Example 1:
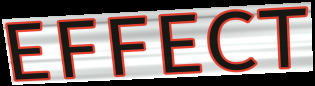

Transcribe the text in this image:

EFFECT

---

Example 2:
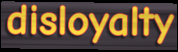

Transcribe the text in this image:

disloyalty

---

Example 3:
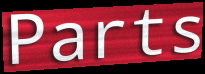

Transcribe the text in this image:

Parts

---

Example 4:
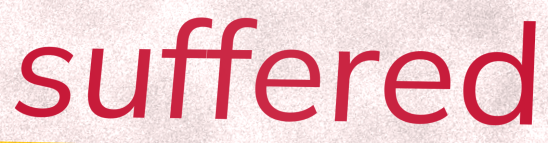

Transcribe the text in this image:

suffered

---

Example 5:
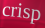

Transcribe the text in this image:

crisp